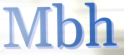
Mbh